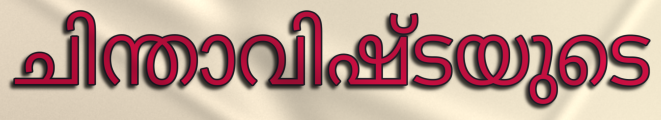
ചിന്താവിഷ്ടയുടെ